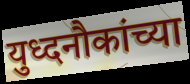
युध्दनौकांच्या